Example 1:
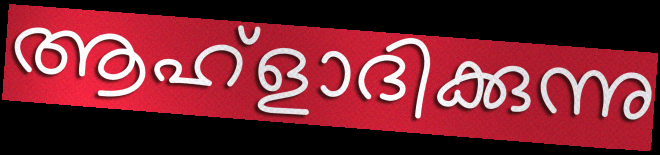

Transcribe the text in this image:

ആഹ്ളാദിക്കുന്നു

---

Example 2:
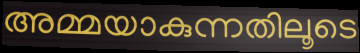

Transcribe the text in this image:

അമ്മയാകുന്നതിലൂടെ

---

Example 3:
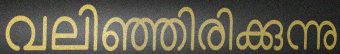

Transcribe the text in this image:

വലിഞ്ഞിരിക്കുന്നു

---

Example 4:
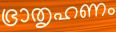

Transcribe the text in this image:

ഭ്രാതൃഹണം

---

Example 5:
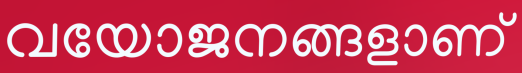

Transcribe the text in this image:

വയോജനങ്ങളാണ്